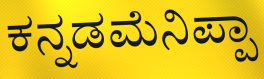
ಕನ್ನಡಮೆನಿಪ್ಪಾ